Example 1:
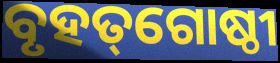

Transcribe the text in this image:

ବୃହତ୍‌ଗୋଷ୍ଠୀ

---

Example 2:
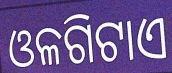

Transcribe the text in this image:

ଓଳଗିଟାଏ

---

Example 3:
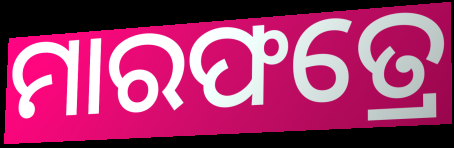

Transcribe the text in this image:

ମାରଫତ୍ରେ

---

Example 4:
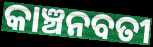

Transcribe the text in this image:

କାଞ୍ଚନବତୀ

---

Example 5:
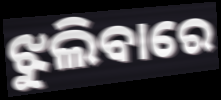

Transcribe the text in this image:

ଝୁଲିବାରେ